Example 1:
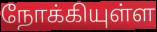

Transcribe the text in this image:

நோக்கியுள்ள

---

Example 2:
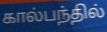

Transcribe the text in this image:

கால்பந்தில்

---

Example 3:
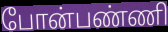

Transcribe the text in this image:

போன்பண்ணி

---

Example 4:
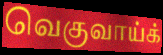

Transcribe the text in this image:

வெகுவாய்க்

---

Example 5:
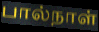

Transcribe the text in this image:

பால்நாள்